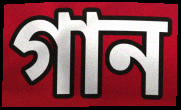
গান